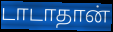
டாடாதான்